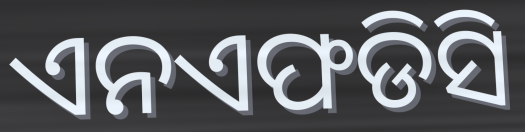
ଏନଏଫଡିସି